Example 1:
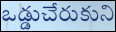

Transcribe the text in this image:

ఒడ్డుచేరుకుని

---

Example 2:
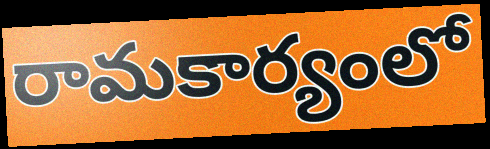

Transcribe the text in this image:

రామకార్యంలో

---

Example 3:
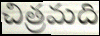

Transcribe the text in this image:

చిత్రమది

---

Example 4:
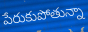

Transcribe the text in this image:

పేరుకుపోతున్నా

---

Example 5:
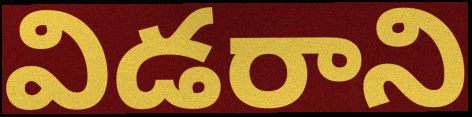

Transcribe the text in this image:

విడరాని